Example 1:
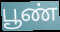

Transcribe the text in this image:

பூண்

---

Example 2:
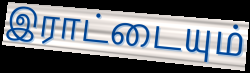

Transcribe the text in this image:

இராட்டையும்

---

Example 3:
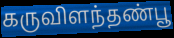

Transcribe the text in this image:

கருவிளந்தண்பூ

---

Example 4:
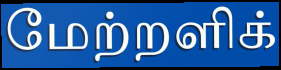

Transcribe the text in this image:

மேற்றளிக்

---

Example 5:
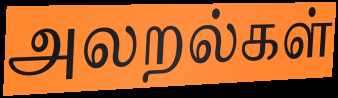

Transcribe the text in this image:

அலறல்கள்